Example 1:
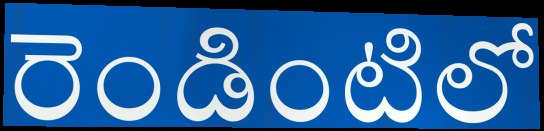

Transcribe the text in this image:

రెండింటిలో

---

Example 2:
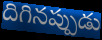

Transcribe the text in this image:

దిగినప్పుడు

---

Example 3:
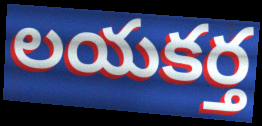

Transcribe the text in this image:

లయకర్త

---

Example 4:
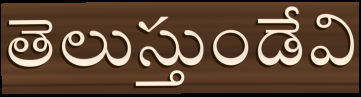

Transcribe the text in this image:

తెలుస్తుండేవి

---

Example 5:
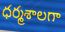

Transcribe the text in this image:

ధర్మశాలగా